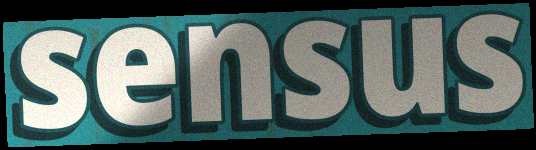
sensus